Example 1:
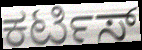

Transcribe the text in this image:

ಕರ್ಟಿಸ್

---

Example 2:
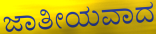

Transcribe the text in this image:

ಜಾತೀಯವಾದ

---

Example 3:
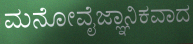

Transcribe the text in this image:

ಮನೋವೈಜ್ಞಾನಿಕವಾದ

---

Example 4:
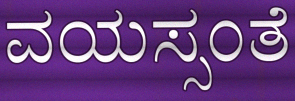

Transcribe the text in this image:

ವಯಸ್ಸಂತೆ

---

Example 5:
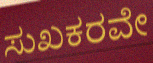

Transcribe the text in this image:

ಸುಖಕರವೇ